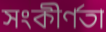
সংকীৰ্ণতা